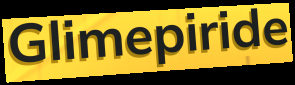
Glimepiride